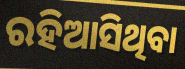
ରହିଆସିଥିବା